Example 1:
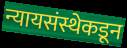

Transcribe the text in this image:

न्यायसंस्थेकडून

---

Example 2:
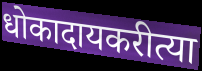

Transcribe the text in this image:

धोकादायकरीत्या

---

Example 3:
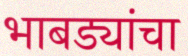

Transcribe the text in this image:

भाबड्यांचा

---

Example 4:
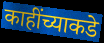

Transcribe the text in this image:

काहींच्याकडे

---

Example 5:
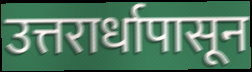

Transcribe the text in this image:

उत्तरार्धापासून